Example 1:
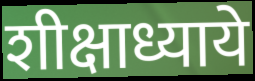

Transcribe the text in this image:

शीक्षाध्याये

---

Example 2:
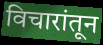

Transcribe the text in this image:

विचारांतून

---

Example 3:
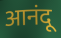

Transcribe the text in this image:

आनंदू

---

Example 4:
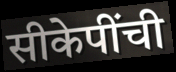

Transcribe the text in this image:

सीकेपींची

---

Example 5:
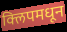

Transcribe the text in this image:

क्लिपमधून